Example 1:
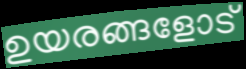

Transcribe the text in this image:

ഉയരങ്ങളോട്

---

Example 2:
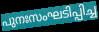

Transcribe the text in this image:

പുനഃസംഘടിപ്പിച്ച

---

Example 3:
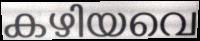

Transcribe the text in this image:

കഴിയവെ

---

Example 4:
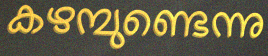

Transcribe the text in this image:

കഴമ്പുണ്ടെന്നു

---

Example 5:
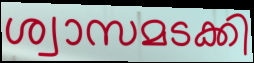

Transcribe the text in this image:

ശ്വാസമടക്കി